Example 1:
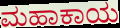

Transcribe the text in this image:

ಮಹಾಕಾಯ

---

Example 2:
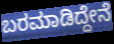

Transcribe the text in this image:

ಬರಮಾಡಿದ್ದೇನೆ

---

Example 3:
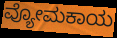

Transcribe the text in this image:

ವ್ಯೋಮಕಾಯ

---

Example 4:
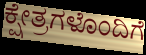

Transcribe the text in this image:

ಕ್ಷೇತ್ರಗಳೊಂದಿಗೆ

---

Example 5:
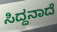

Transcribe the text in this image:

ಸಿದ್ದನಾದೆ